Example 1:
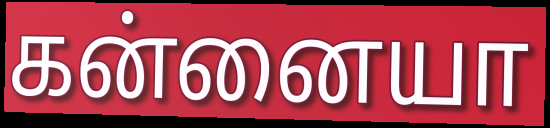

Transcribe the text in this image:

கன்னையா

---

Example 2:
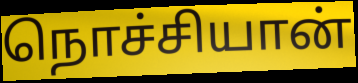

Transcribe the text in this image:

நொச்சியான்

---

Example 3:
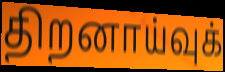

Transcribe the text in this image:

திறனாய்வுக்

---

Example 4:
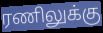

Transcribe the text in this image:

ரணிலுக்கு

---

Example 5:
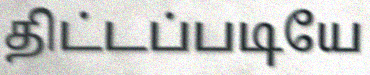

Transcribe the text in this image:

திட்டப்படியே